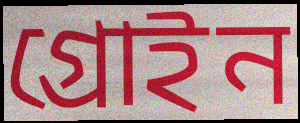
গ্রোইন